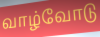
வாழ்வோடு